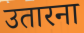
उतारना